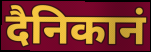
दैनिकानं